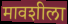
मावशीला